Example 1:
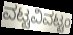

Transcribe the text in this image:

ವಟ್ಟವಿವಟ್ಟಂ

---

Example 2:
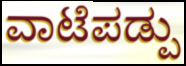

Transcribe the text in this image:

ವಾಟೆಪಡ್ಪು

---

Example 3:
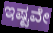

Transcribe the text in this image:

ಇಷ್ಟವೇ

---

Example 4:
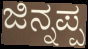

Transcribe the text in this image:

ಜಿನ್ನಪ್ಪ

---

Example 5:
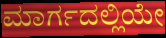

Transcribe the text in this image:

ಮಾರ್ಗದಲ್ಲಿಯೇ